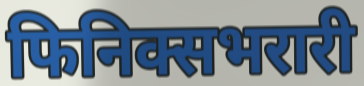
फिनिक्सभरारी